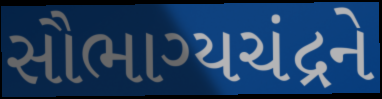
સૌભાગ્યચંદ્રને